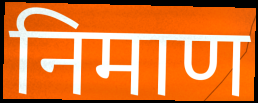
निमाण